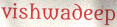
vishwadeep